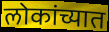
लोकांच्यात